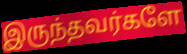
இருந்தவர்களே